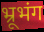
भ्रूभंग